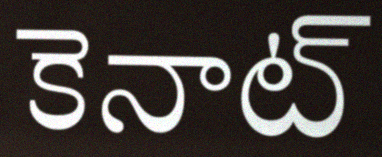
కెనాట్